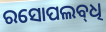
ରସୋପଲବ୍‌ଧି